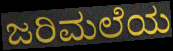
ಜರಿಮಲೆಯ